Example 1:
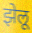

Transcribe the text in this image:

झेलू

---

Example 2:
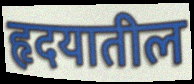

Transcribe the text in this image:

हृदयातील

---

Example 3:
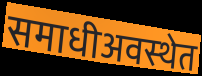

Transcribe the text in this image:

समाधीअवस्थेत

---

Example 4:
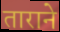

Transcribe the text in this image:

ताराने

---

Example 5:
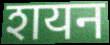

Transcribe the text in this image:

शयन